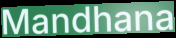
Mandhana